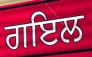
ਗਇਲ